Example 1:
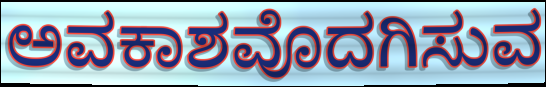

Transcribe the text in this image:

ಅವಕಾಶವೊದಗಿಸುವ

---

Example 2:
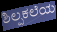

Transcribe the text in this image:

ಶಿಲ್ಪಕಲೆಯ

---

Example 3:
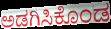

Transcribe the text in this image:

ಅಡಗಿಸಿಕೊಂಡ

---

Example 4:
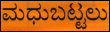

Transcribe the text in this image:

ಮಧುಬಟ್ಟಲು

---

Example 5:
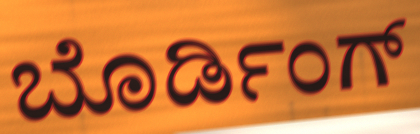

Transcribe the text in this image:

ಬೊರ್ಡಿಂಗ್